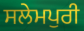
ਸਲੇਮਪੁਰੀ